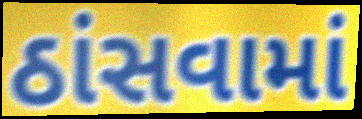
ઠાંસવામાં